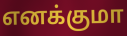
எனக்குமா